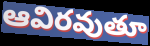
ఆవిరవుతూ